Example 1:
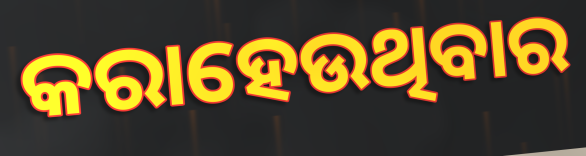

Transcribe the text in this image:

କରାହେଉଥିବାର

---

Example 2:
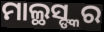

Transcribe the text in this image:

ମାଲ୍ଥସ୍ଙ୍କର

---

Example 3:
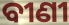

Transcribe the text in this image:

ବୀଣୀ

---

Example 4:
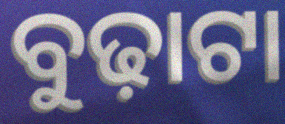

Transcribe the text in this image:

ବୁଢ଼ାଟା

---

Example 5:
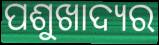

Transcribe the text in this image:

ପଶୁଖାଦ୍ୟର